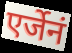
एर्जेनं